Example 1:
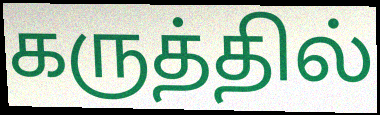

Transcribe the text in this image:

கருத்தில்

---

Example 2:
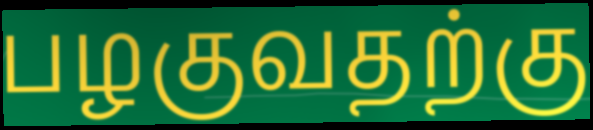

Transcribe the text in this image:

பழகுவதற்கு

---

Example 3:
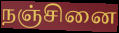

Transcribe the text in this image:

நஞ்சினை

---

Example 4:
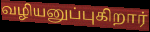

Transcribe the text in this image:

வழியனுப்புகிறார்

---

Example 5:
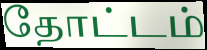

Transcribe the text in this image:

தோட்டம்